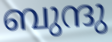
ബുന്ദു